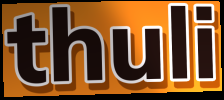
thuli